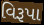
વિરૂપા